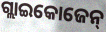
ଗ୍ଲାଇକୋଜେନ୍